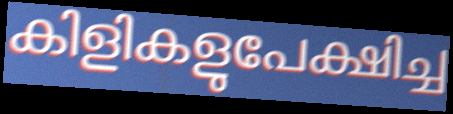
കിളികളുപേക്ഷിച്ച